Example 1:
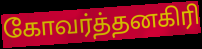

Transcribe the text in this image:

கோவர்த்தனகிரி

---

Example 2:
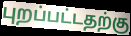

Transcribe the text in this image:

புறப்பட்டதற்கு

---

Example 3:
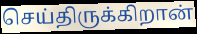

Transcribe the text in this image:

செய்திருக்கிறான்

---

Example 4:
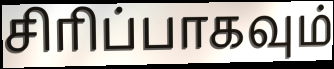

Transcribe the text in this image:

சிரிப்பாகவும்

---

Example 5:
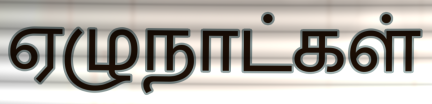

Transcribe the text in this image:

ஏழுநாட்கள்